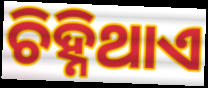
ଚିହ୍ନିଥାଏ